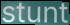
stunt